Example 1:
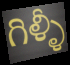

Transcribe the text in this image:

గిళ్ళీ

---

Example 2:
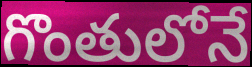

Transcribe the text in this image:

గొంతులోనే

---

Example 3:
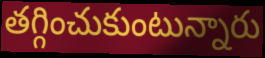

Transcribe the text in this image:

తగ్గించుకుంటున్నారు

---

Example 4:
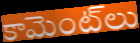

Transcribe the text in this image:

కామెంట్‌లు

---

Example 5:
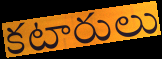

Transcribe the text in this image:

కటారులు